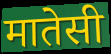
मातेसी